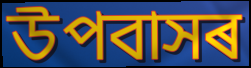
উপবাসৰ